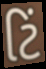
ટિં